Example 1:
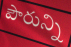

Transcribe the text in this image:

పౌరున్ని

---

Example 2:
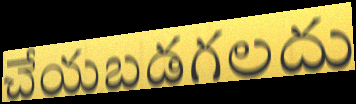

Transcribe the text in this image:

చేయబడగలదు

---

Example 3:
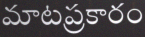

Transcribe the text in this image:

మాటప్రకారం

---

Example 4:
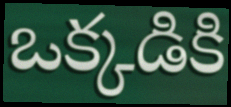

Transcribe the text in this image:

ఒక్కడికి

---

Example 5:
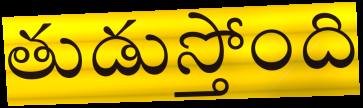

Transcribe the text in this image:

తుడుస్తోంది